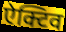
ऐक्टिव